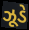
ઝૂડે